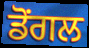
ਡੋਂਗਲ